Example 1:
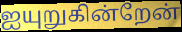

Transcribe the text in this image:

ஐயுறுகின்றேன்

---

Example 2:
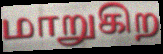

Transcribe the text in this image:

மாறுகிற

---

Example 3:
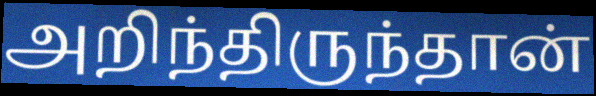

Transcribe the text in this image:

அறிந்திருந்தான்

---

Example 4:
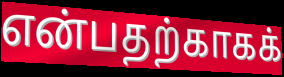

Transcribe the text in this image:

என்பதற்காகக்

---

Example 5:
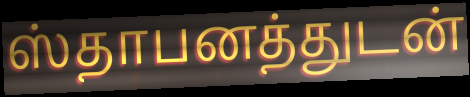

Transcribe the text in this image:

ஸ்தாபனத்துடன்